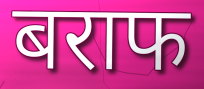
बराफ